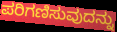
ಪರಿಗಣಿಸುವುದನ್ನು